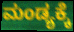
ಮಂಡ್ಯಕ್ಕೆ